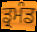
ਡ੍ਰਮੰਡ